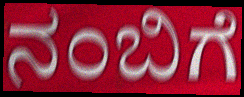
ನಂಬಿಗೆ